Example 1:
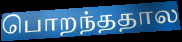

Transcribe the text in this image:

பொறந்ததால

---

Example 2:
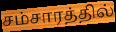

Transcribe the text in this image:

சம்சாரத்தில்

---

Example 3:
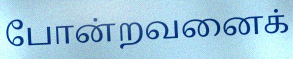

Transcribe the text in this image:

போன்றவனைக்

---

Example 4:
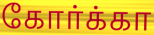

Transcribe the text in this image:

கோர்க்கா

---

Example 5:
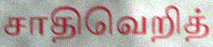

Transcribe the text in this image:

சாதிவெறித்